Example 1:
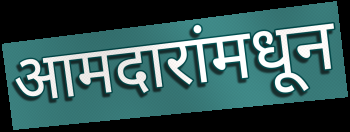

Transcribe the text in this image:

आमदारांमधून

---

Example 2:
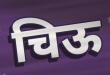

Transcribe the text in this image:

चिऊ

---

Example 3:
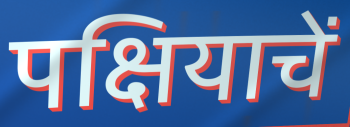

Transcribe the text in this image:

पक्षियाचें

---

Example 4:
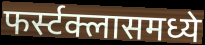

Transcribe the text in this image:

फर्स्टक्लासमध्ये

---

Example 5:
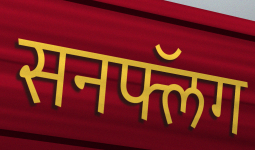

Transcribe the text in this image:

सनफ्लॅग